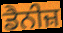
ਡੈਨੀਜ਼